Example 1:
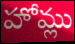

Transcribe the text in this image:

హోమ్లు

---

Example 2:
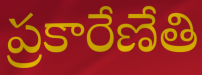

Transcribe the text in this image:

ప్రకారేణేతి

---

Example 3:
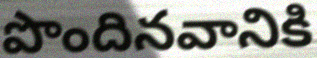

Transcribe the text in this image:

పొందినవానికి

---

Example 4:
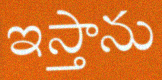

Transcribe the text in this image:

ఇస్తాను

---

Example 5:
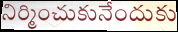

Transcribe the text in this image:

నిర్మించుకునేందుకు